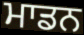
ਮਾਡਨ